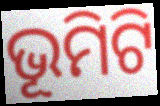
ଭୂମିଟି